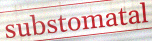
substomatal